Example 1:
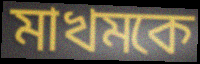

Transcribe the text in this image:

মাখমকে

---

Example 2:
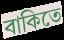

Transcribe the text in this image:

বাকিতে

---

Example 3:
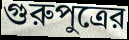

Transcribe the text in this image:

গুরুপুত্রের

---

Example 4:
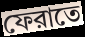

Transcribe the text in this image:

ফেরাতে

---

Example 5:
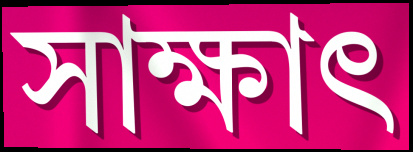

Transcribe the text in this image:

সাক্ষাৎ